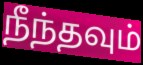
நீந்தவும்